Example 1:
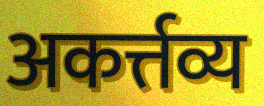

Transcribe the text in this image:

अकर्त्तव्य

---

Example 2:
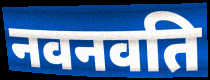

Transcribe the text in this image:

नवनवति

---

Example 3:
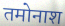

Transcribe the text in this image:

तमोनाश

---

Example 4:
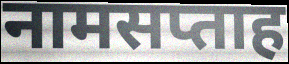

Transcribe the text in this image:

नामसप्ताह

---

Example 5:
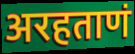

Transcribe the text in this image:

अरहताणं